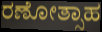
ರಣೋತ್ಸಾಹ